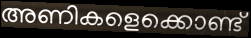
അണികളെക്കൊണ്ട്